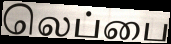
லெப்பை